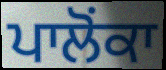
ਪਾਲੋਂਕਾ